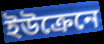
ইউক্রেনে